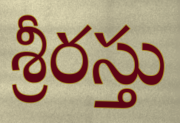
శ్రీరస్తు